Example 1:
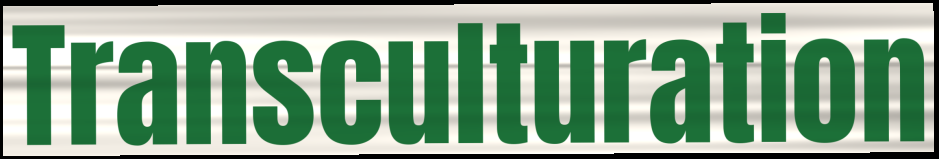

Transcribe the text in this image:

Transculturation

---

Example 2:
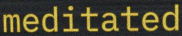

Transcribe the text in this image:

meditated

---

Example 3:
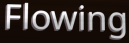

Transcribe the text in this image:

Flowing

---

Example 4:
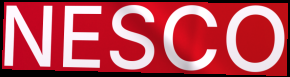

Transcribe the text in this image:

NESCO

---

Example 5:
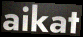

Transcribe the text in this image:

aikat